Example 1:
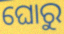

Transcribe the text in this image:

ଘୋରୁ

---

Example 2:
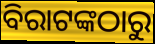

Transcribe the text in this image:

ବିରାଟଙ୍କଠାରୁ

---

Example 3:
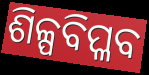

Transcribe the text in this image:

ଶିଳ୍ପବିପ୍ଳବ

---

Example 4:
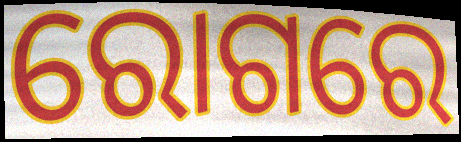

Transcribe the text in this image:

ରୋଗରେ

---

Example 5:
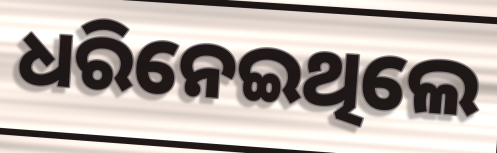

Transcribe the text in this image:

ଧରିନେଇଥିଲେ